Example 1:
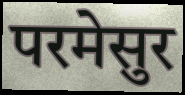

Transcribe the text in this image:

परमेसुर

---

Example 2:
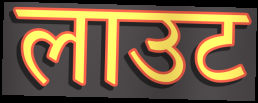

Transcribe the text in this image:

लाउट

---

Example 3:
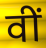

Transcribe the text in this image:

वीं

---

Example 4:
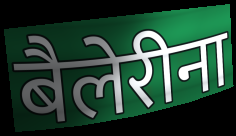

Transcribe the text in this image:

बैलेरीना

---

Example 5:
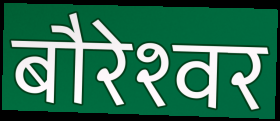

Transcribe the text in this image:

बौरेश्वर